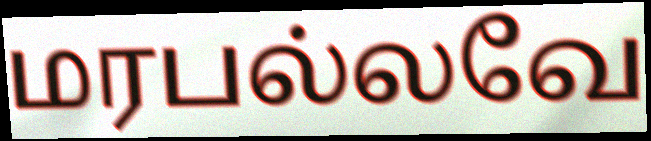
மரபல்லவே